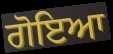
ਗੋਇਆ